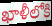
ఖాళీలోకి